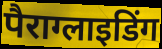
पैराग्लाइडिंग